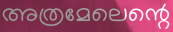
അത്രമേലെന്റെ